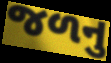
જળનુ